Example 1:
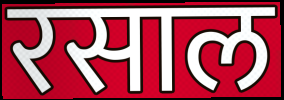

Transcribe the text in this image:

रसाल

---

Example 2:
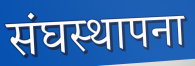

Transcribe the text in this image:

संघस्थापना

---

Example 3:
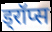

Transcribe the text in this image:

ड्रॉप्स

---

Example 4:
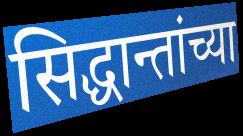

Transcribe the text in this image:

सिद्धान्तांच्या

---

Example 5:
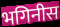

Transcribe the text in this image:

भगिनीस